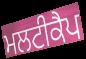
ਮਲਟੀਕੈਪ